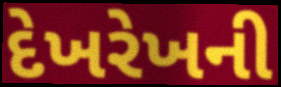
દેખરેખની